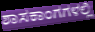
ಶಾಸಕಾಂಗಗಳಲ್ಲಿ